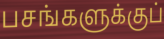
பசங்களுக்குப்